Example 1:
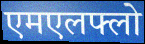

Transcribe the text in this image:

एमएलफ्लो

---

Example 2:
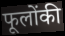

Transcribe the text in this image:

फूलोंकी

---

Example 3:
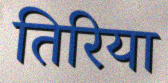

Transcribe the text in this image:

तिरिया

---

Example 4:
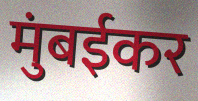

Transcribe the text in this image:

मुंबईकर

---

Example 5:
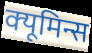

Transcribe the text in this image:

क्यूमिन्स